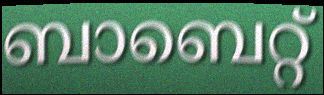
ബാബെറ്റ്